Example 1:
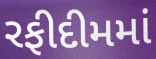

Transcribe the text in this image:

રફીદીમમાં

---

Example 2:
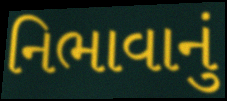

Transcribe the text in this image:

નિભાવાનું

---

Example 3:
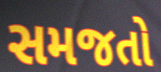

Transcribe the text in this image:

સમજતો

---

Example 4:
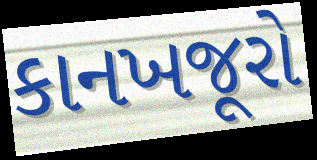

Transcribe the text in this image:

કાનખજૂરો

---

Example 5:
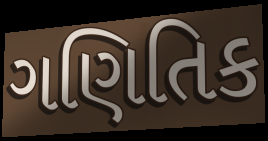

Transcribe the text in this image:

ગણિતિક